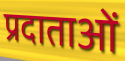
प्रदाताओं